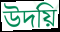
উদয়ি